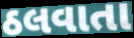
ઠલવાતા